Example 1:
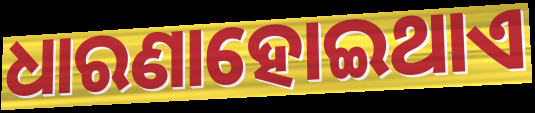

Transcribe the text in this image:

ଧାରଣାହୋଇଥାଏ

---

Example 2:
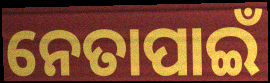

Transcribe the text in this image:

ନେତାପାଇଁ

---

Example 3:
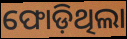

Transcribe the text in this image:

ଫୋଡ଼ିଥିଲା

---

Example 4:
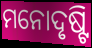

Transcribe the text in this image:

ମନୋଦୃଷ୍ଟି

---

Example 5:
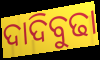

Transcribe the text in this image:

ଦାଦିବୁଢା